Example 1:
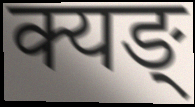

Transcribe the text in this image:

क्यङ्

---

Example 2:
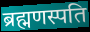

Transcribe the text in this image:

ब्रह्मणस्पति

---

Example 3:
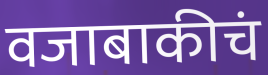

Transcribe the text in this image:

वजाबाकीचं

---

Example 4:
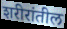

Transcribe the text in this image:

शरीरांतील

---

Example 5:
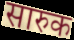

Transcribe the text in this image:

सारुक